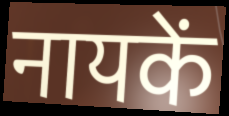
नायकें